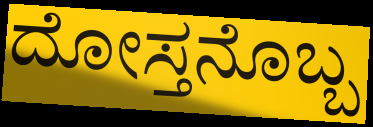
ದೋಸ್ತನೊಬ್ಬ